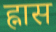
ह्नास